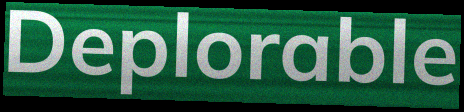
Deplorable